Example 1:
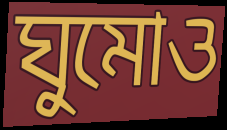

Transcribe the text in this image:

ঘুমোও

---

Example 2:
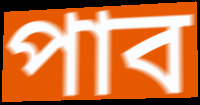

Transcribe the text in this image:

পাব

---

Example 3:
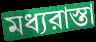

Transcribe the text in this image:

মধ্যরাস্তা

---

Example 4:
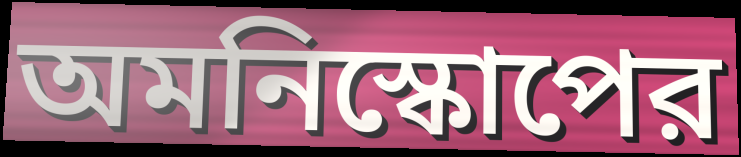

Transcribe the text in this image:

অমনিস্কোপের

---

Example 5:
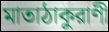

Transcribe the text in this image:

মাতাঠাকুরাণী